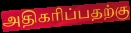
அதிகரிப்பதற்கு